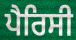
ਪੈਰਿਸੀ